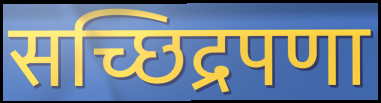
सच्छिद्रपणा